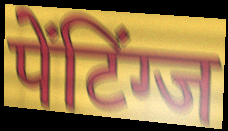
पेंटिंग्ज